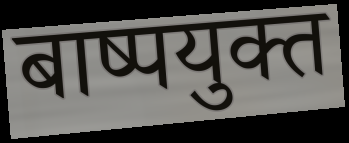
बाष्पयुक्त